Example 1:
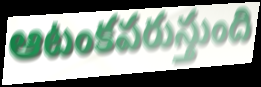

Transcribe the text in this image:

ఆటంకపరుస్తుంది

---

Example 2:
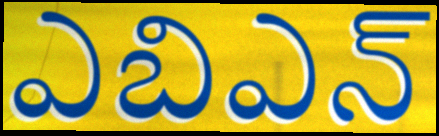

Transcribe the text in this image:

ఎబిఎన్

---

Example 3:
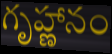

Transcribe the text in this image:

గృహ్ణానం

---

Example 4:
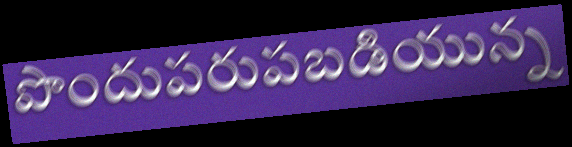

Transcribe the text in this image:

పొందుపరుపబడియున్న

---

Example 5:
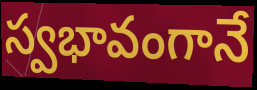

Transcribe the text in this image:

స్వభావంగానే